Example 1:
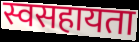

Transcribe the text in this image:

स्‍वसहायता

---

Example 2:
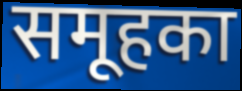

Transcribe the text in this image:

समूहका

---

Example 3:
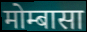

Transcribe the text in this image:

मोम्बासा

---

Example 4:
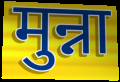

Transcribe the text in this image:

मुन्ना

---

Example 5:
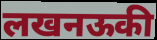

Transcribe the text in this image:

लखनऊकी